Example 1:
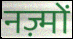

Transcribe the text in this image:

नज़्मों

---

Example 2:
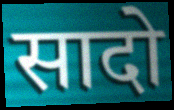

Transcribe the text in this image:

सादो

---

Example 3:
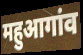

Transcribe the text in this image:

महुआगांव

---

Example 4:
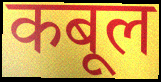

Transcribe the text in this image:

कबूल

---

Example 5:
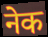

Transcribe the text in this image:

नेक